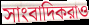
সাংবাদিকরাও